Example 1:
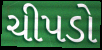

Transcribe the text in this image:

ચીપડો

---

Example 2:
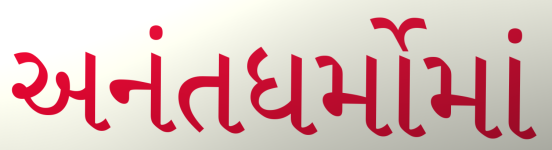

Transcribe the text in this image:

અનંતધર્મોમાં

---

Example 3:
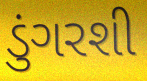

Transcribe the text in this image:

ડુંગરશી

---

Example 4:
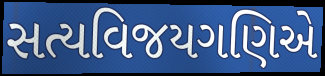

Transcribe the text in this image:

સત્યવિજયગણિએ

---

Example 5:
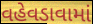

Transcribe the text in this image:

વહેવડાવામાં